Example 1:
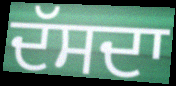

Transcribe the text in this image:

ਦੱਸਦਾ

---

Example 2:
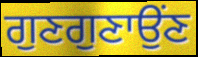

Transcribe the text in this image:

ਗੁਣਗੁਣਾਉਂਣ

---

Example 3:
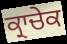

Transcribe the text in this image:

ਕ੍ਰਾਚੇਕ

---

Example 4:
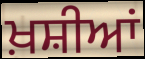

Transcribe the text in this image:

ਖ਼ਸ਼ੀਆਂ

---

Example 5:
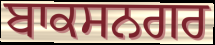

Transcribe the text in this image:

ਬਾਕਸਨਗਰ